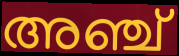
അഞ്ച്